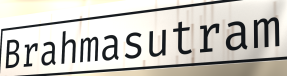
Brahmasutram